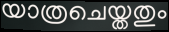
യാത്രചെയ്തതും